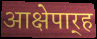
आक्षेपार्ह